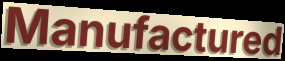
Manufactured